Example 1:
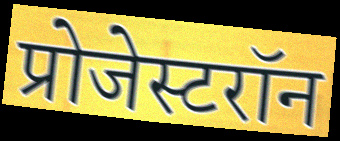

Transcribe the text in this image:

प्रोजेस्टरॉन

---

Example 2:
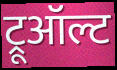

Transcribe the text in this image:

ट्रूऑल्ट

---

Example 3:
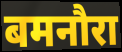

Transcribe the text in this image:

बमनौरा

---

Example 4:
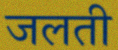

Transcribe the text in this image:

जलती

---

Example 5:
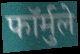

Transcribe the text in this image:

फॉर्मुले